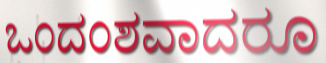
ಒಂದಂಶವಾದರೂ